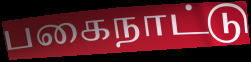
பகைநாட்டு